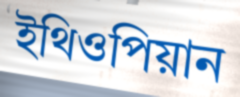
ইথিওপিয়ান